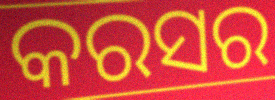
କରସର